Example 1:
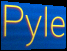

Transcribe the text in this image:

Pyle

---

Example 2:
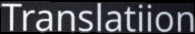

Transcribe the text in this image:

Translatiion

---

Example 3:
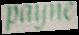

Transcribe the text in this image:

payne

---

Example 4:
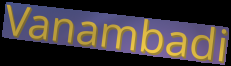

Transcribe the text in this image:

Vanambadi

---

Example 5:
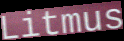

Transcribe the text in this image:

Litmus